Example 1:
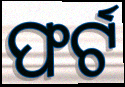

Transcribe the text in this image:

ଫର୍ଟ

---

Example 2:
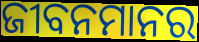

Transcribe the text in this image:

ଜୀବନମାନର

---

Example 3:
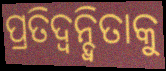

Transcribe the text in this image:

ପ୍ରତିଦ୍ୱନ୍ଦ୍ୱିତାକୁ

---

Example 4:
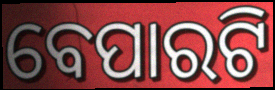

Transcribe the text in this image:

ବେପାରଟି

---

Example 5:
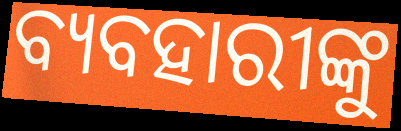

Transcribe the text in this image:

ବ୍ୟବହାରୀଙ୍କୁ